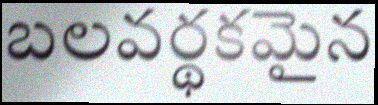
బలవర్థకమైన